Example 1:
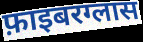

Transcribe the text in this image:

फ़ाइबरग्लास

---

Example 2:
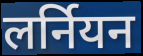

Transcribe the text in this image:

लर्नियन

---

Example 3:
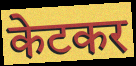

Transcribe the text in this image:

केटकर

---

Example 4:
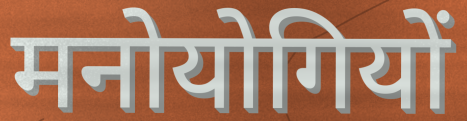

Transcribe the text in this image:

मनोयोगियों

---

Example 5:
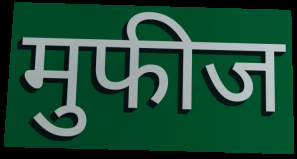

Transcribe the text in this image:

मुफीज